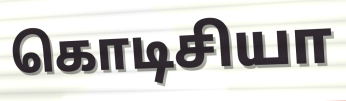
கொடிசியா